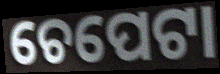
ଚେପେଟା